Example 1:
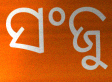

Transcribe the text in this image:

ସଂଜୁ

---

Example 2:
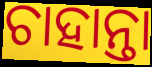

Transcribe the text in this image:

ଚାହାନ୍ତା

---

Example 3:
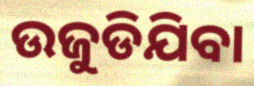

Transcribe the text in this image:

ଉଜୁଡିଯିବା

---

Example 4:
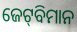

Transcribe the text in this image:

ଜେଟ୍‍ବିମାନ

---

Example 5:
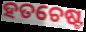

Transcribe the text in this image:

ହତଚେଷ୍ଟ